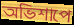
অভিশাপে